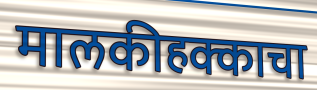
मालकीहक्काचा